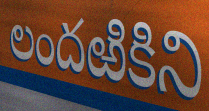
లందఱికిని